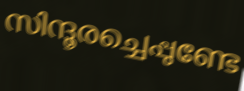
സിന്ദൂരച്ചെപ്പുണ്ടേ